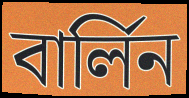
বার্লিন